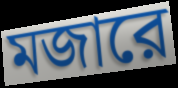
মজারে